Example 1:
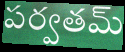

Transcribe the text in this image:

పర్వతమ్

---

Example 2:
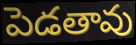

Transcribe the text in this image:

పెడతావు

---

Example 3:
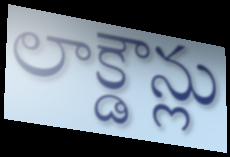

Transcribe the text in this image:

లాక్డౌన్లు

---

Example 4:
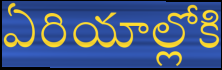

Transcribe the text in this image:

ఏరియాల్లోకి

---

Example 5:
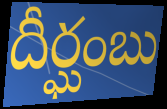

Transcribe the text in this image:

దీర్ఘంబు